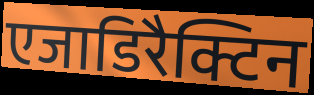
एजाडिरैक्टिन